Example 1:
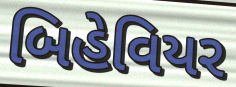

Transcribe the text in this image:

બિહેવિયર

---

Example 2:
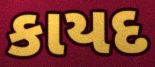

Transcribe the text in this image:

કાયદ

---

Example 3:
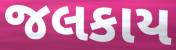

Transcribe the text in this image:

જલકાય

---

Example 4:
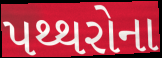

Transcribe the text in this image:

પથ્થરોના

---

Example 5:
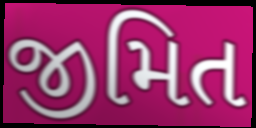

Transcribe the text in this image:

જીમિત